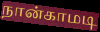
நான்காமடி